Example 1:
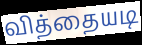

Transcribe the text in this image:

வித்தையடி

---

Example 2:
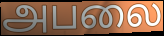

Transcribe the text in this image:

அபலை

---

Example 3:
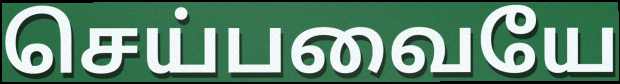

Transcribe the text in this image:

செய்பவையே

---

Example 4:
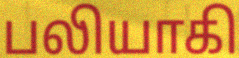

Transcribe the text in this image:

பலியாகி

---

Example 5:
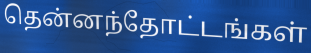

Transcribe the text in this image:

தென்னந்தோட்டங்கள்